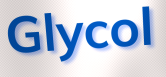
Glycol